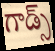
గాడ్స్